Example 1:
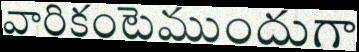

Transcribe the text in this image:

వారికంటెముందుగా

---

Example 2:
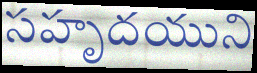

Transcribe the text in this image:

సహృదయుని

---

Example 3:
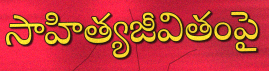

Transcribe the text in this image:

సాహిత్యజీవితంపై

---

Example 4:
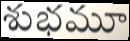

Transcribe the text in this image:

శుభమూ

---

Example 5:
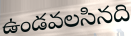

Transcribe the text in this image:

ఉండవలసినది